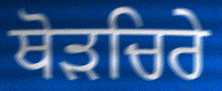
ਥੋੜਚਿਰੇ